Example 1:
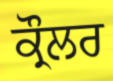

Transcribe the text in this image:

ਕ੍ਰੌਲਰ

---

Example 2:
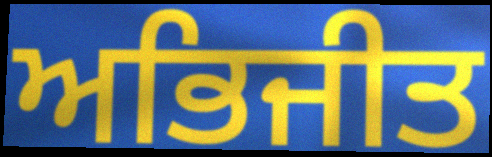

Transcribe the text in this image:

ਅਭਿਜੀਤ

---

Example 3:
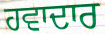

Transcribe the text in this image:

ਹਵਾਦਾਰ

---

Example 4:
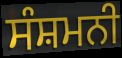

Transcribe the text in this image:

ਸੰਸ਼ਮਨੀ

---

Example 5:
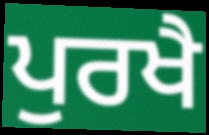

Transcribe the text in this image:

ਪੁਰਖੈ